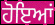
ਹੋਇਆਂ